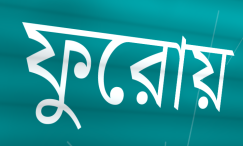
ফুরোয়